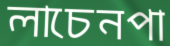
লাচেনপা